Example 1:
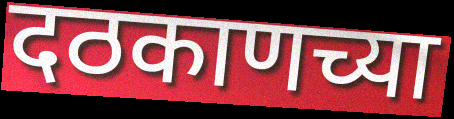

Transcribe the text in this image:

दठकाणच्या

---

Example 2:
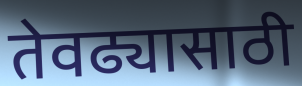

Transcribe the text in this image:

तेवढ्यासाठी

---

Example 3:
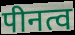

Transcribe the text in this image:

पीनत्व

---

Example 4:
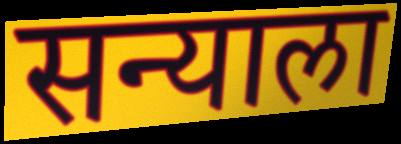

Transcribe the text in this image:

सन्याला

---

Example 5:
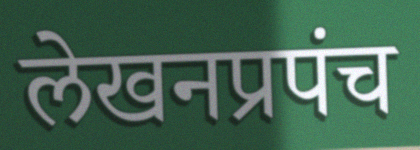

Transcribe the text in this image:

लेखनप्रपंच